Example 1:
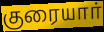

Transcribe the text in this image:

குரையார்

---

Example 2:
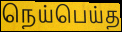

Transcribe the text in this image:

நெய்பெய்த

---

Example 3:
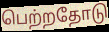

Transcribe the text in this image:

பெற்றதோடு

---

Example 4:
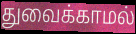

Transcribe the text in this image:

துவைக்காமல்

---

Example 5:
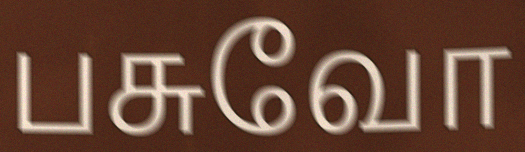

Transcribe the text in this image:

பசுவோ